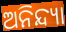
ଅନିନ୍ଦ୍ୟା